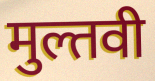
मुल्तवी